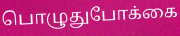
பொழுதுபோக்கை